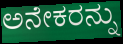
ಅನೇಕರನ್ನು